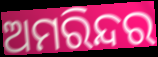
ଅମରିନ୍ଦର